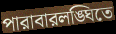
পারাবারলঙ্ঘিতে